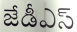
జేడీఎస్